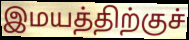
இமயத்திற்குச்